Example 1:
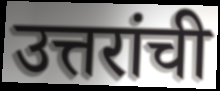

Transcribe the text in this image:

उत्तरांची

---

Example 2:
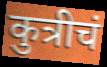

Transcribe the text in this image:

कुत्रीचं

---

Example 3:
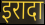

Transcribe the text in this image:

इरादा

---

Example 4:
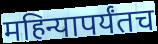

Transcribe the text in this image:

महिन्यापर्यंतच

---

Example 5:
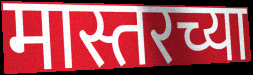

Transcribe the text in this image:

मास्तरच्या